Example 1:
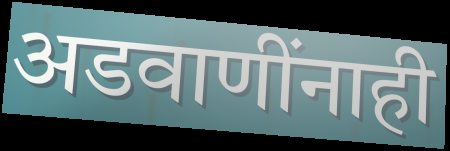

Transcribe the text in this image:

अडवाणींनाही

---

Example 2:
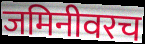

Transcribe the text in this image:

जमिनीवरच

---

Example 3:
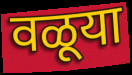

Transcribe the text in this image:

वळूया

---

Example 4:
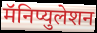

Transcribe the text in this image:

मॅनिप्युलेशन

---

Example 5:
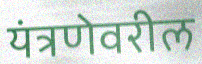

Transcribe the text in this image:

यंत्रणेवरील